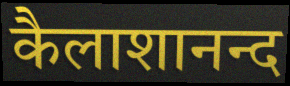
कैलाशानन्द